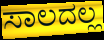
ಸಾಲದಲ್ಲ